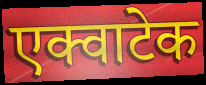
एक्वाटेक